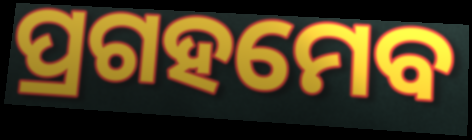
ପ୍ରଗହମେବ